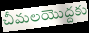
చీమలయొద్దకు